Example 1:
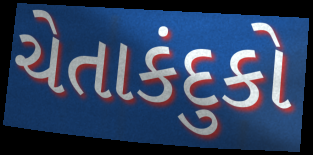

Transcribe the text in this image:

ચેતાકંદુકો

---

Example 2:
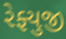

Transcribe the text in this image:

રેફ્યુજી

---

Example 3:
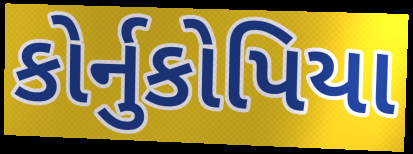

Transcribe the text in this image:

કોર્નુકોપિયા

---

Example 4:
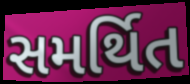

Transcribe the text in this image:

સમર્થિત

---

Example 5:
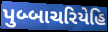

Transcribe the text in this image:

પુબ્બાચરિયેહિ